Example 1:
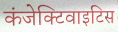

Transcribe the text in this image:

कंजेक्टिवाइटिस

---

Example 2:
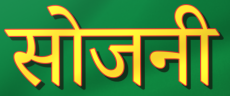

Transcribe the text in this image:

सोजनी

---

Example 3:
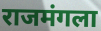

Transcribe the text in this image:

राजमंगला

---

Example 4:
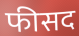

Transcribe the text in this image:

फीसद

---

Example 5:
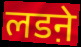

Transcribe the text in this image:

लडऩे